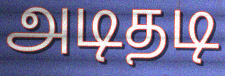
அடிதடி